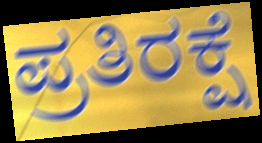
ಪ್ರತಿರಕ್ಷೆ